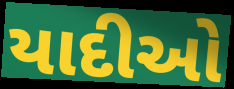
યાદીઓ